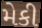
મેકી